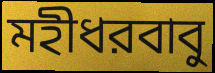
মহীধরবাবু